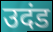
उदंड